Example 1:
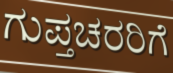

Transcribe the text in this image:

ಗುಪ್ತಚರರಿಗೆ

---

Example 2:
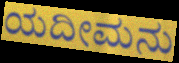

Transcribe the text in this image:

ಯದೀಮನು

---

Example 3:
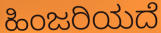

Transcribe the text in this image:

ಹಿಂಜರಿಯದೆ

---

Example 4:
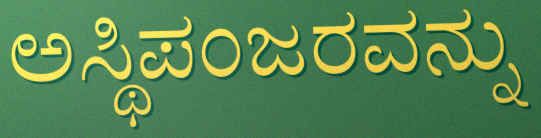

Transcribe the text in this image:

ಅಸ್ಥಿಪಂಜರವನ್ನು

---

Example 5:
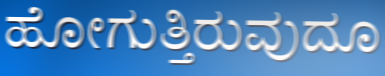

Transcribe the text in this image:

ಹೋಗುತ್ತಿರುವುದೂ